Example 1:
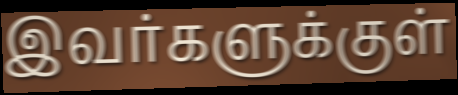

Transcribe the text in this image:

இவர்களுக்குள்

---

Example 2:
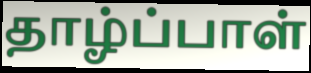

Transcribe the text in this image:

தாழ்ப்பாள்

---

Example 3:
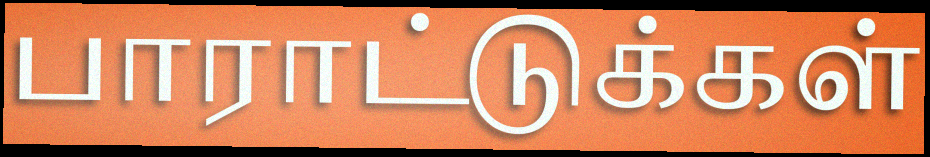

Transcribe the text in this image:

பாராட்டுக்கள்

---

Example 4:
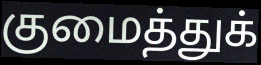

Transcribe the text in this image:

குமைத்துக்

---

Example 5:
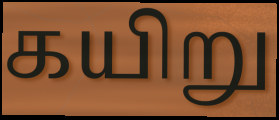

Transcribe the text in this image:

கயிறு